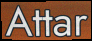
Attar